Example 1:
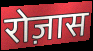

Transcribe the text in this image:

रोज़ास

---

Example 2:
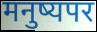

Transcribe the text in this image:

मनुष्यपर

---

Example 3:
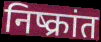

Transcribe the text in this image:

निष्क्रांत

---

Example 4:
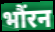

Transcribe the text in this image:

भौंरन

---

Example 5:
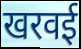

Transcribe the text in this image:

खरवई